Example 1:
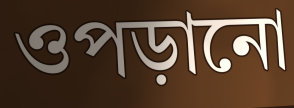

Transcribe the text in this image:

ওপড়ানো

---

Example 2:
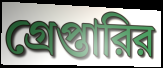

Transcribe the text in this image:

গ্রেপ্তারির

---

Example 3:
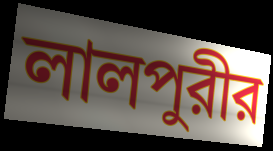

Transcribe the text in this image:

লালপুরীর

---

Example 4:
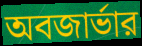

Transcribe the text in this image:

অবজার্ভার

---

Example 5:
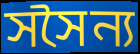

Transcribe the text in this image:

সসৈন্য